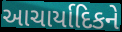
આચાર્યાદિકને